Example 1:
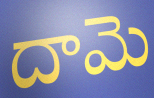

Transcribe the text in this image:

దామె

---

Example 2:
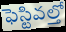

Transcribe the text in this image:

ఫెస్టివల్తో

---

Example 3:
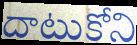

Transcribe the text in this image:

దాటుకోని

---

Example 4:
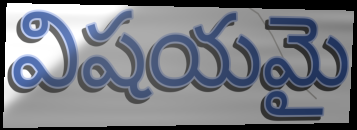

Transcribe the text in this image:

విషయమై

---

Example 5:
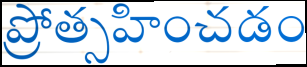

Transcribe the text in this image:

ప్రోత్సహించడం